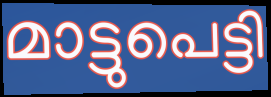
മാട്ടുപെട്ടി